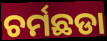
ଚର୍ମଛଡା